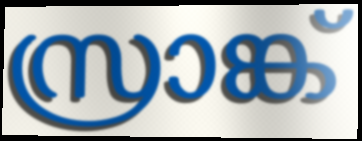
സ്രാങ്ക്